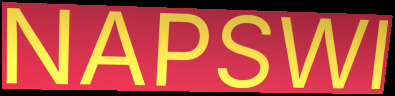
NAPSWI